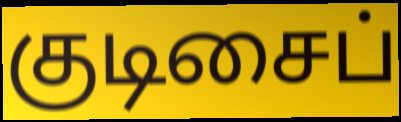
குடிசைப்